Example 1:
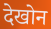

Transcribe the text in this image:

देखोन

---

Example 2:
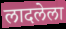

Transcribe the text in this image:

लादलेला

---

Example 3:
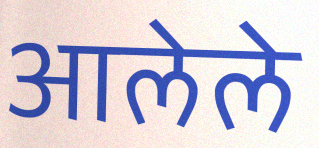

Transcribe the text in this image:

आलेले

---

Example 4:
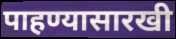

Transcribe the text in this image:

पाहण्यासारखी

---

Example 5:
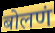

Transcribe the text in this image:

बोलणं